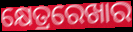
କ୍ଷେତ୍ରରେଖାର